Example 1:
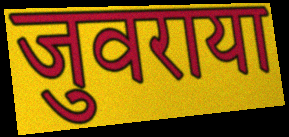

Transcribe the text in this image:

जुवराया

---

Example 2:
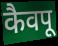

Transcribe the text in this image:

कैवपू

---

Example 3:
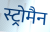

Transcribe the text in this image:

स्ट्रोमैन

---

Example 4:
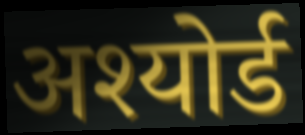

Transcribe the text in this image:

अश्योर्ड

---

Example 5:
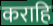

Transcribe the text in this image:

कराहि